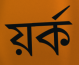
য়ৰ্ক